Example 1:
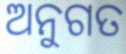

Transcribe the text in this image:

ଅନୁଗତ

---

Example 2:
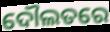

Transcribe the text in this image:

ଦୌଲତରେ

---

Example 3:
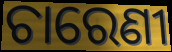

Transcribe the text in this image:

ଚାରେଣୀ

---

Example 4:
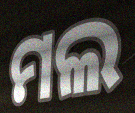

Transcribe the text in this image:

ମଲ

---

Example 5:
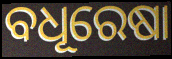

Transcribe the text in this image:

ବଧୂରେଷା